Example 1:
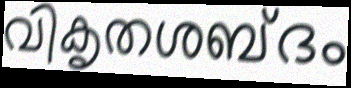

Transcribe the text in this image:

വികൃതശബ്ദം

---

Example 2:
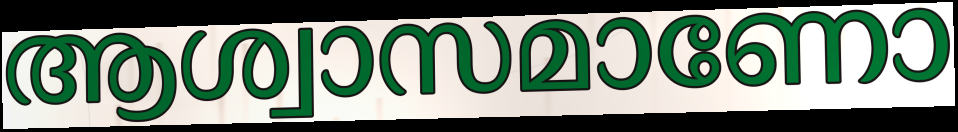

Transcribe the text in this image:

ആശ്വാസമാണോ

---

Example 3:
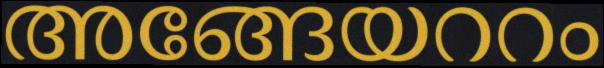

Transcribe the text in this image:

അങ്ങേയററം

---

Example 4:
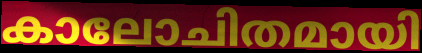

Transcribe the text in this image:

കാലോചിതമായി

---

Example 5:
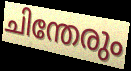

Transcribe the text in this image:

ചിന്തേരും